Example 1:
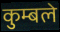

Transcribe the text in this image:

कुम्बले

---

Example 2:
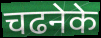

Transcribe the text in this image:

चढनेके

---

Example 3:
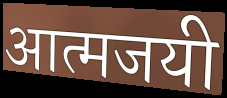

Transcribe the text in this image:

आत्मजयी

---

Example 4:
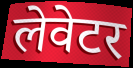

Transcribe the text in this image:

लेवेटर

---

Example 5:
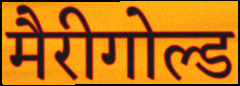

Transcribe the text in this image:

मैरीगोल्ड